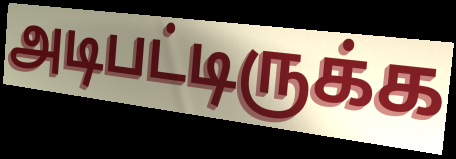
அடிபட்டிருக்க